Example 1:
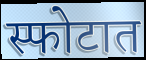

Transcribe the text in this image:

स्फोटात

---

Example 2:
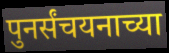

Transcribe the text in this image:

पुनर्संचयनाच्या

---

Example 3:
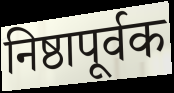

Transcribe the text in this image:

निष्ठापूर्वक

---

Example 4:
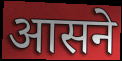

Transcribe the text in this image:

आसने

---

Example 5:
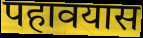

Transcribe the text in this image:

पहावयास